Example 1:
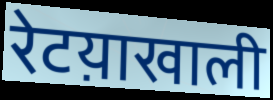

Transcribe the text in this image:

रेटय़ाखाली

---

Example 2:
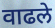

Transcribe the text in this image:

वाढले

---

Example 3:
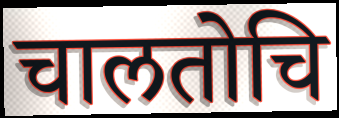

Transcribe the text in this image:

चालतोचि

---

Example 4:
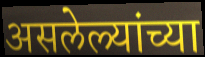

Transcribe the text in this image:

असलेल्यांच्या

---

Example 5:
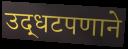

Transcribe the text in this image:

उद्धटपणाने